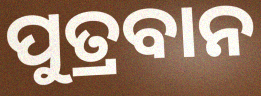
ପୁତ୍ରବାନ